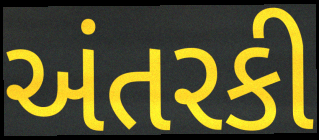
અંતરકી